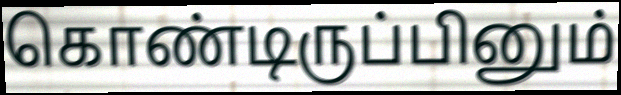
கொண்டிருப்பினும்